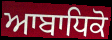
ਆਬਾਧਿਕੋ